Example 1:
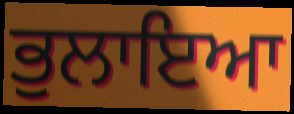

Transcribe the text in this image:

ਭੁਲਾਇਆ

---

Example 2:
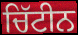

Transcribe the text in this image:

ਚਿੱਟੀਨ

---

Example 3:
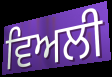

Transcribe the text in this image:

ਵਿਅਲੀ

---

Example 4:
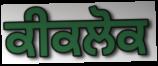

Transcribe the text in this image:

ਕੀਕਲੋਕ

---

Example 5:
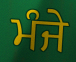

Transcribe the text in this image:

ਮੰਜੇ